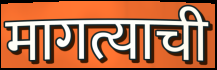
मागत्याची